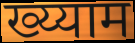
ख्य्याम